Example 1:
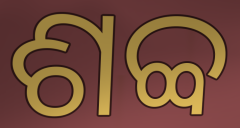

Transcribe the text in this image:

ଶବ୍ବ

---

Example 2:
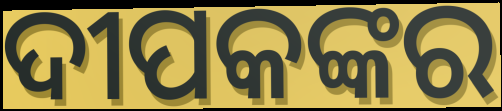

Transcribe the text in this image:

ଦୀପକଙ୍କର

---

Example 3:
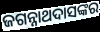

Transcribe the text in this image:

ଜଗନ୍ନାଥଦାସଙ୍କର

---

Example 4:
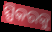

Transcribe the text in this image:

ସ୍ପିକରକୁ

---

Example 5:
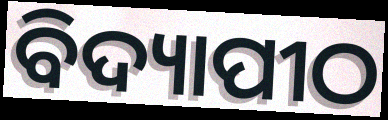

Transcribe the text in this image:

ବିଦ୍ୟାପୀଠ